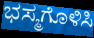
ಭಸ್ಮಗೊಳಿಸಿ